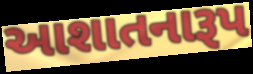
આશાતનારૂપ